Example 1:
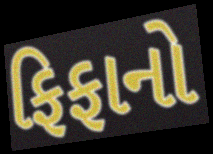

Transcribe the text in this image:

ફિફાનો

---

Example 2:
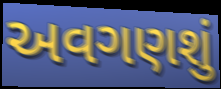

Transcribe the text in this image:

અવગણશું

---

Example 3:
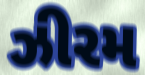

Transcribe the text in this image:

ઝીરમ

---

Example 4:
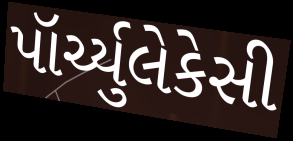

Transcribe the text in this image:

પૉર્ચ્યુલેકેસી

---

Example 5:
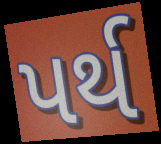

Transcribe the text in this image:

પર્થ